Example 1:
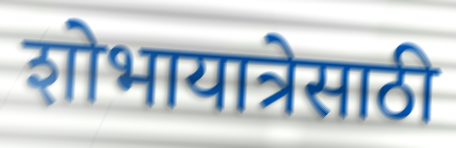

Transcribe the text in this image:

शोभायात्रेसाठी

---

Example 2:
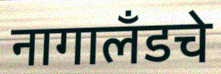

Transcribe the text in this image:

नागालँडचे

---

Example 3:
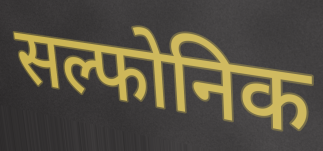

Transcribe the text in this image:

सल्फोनिक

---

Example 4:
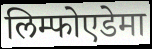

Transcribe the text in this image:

लिम्फोएडेमा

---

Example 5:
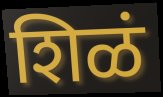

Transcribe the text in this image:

शिळं